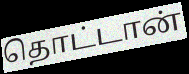
தொட்டான்